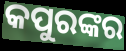
କପୁରଙ୍କର